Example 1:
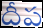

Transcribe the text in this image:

దీప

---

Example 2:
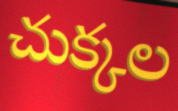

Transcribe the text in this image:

చుక్కల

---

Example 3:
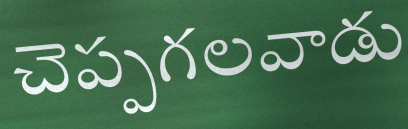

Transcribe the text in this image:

చెప్పగలవాడు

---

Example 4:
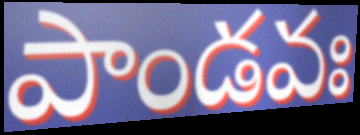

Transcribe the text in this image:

పాండవః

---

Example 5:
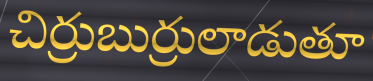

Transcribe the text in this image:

చిర్రుబుర్రులాడుతూ